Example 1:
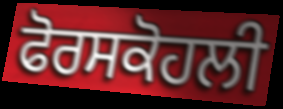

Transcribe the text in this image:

ਫੋਰਸਕੋਹਲੀ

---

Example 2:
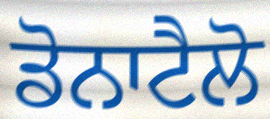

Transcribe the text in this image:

ਡੋਨਾਟੈਲੋ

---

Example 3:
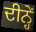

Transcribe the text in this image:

ਦੀਨ੍ਹੇਂ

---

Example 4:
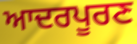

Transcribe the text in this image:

ਆਦਰਪੂਰਣ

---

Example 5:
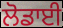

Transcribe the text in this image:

ਲੋਡਾਈ